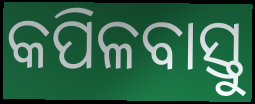
କପିଳବାସ୍ତୁ